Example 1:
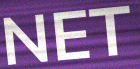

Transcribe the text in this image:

NET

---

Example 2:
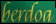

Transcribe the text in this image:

berdoa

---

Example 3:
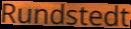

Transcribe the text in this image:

Rundstedt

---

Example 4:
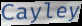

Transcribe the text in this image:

Cayley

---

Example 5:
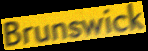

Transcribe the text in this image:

Brunswick